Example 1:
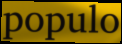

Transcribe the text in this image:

populo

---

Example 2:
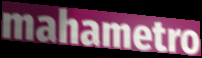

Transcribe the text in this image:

mahametro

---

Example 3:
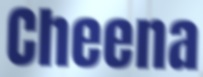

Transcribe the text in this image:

Cheena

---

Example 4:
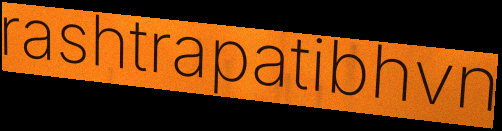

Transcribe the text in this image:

rashtrapatibhvn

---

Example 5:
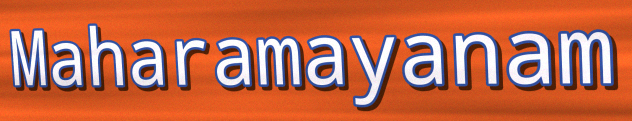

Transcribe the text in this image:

Maharamayanam